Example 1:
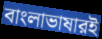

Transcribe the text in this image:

বাংলাভাষারই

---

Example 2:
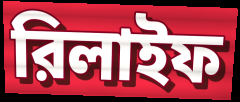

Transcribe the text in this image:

রিলাইফ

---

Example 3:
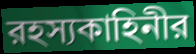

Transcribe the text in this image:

রহস্যকাহিনীর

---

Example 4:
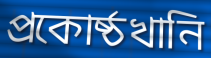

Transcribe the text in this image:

প্রকোষ্ঠখানি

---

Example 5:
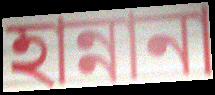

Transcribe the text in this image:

হান্নানা